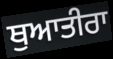
ਥੁਆਤੀਰਾ